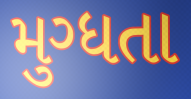
મુગ્ધતા